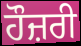
ਹੌਜ਼ਰੀ